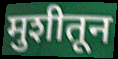
मुशीतून